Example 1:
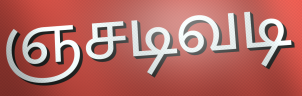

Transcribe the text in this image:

ஞசடிவடி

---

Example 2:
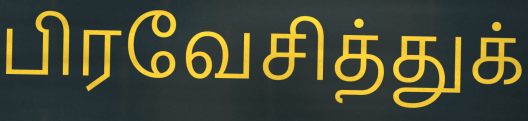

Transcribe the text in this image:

பிரவேசித்துக்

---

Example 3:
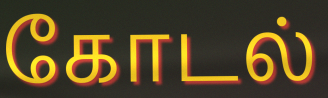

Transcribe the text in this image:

கோடல்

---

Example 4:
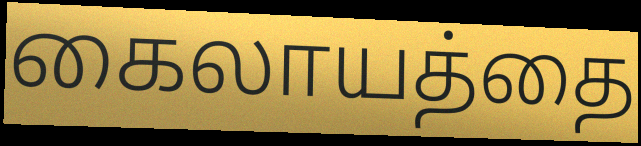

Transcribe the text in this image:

கைலாயத்தை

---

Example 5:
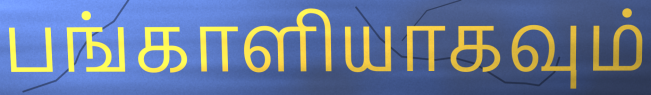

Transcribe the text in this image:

பங்காளியாகவும்